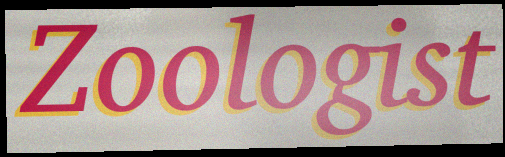
Zoologist